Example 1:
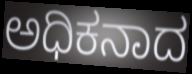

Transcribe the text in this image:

ಅಧಿಕನಾದ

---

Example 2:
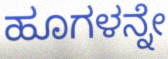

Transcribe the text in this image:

ಹೂಗಳನ್ನೇ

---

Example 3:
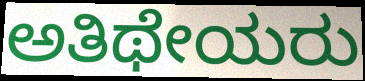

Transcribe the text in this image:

ಅತಿಥೇಯರು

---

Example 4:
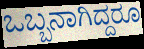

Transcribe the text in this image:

ಒಬ್ಬನಾಗಿದ್ದರೂ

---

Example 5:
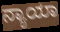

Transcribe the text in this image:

ನ್ಯಾಯಾ